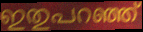
ഇതുപറഞ്ഞ്